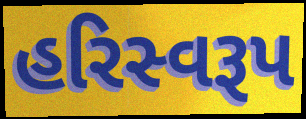
હરિસ્વરૂપ